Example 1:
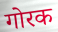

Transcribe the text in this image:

गोरक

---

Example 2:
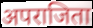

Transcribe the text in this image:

अपराजिता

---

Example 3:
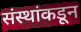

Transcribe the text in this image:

संस्थांकडून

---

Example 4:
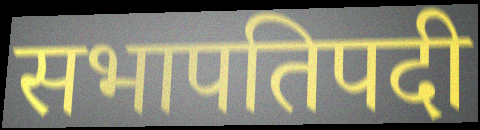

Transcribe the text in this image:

सभापतिपदी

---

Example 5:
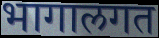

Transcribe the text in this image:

भागालगत